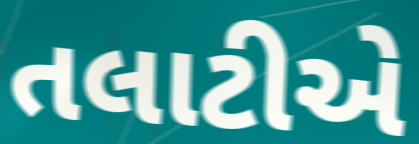
તલાટીએ